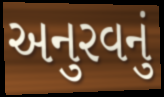
અનુરવનું